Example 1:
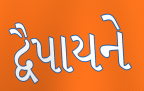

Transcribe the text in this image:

દ્વૈપાયને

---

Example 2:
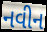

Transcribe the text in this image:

નવીન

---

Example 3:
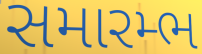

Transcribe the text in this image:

સમારમ્ભ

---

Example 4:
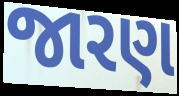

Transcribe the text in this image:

જારણ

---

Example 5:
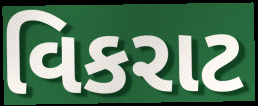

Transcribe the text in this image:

વિકરાટ